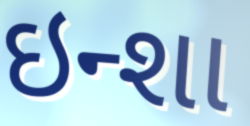
ઇન્શા